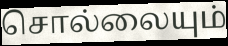
சொல்லையும்